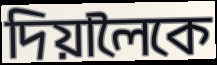
দিয়ালৈকে